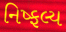
નિષ્ફલ્ય